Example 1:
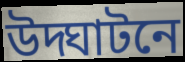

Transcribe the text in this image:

উদ্ঘাটনে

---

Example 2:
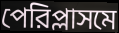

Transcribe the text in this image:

পেরিপ্লাসমে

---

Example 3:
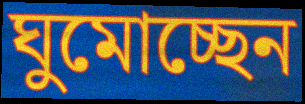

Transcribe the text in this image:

ঘুমোচ্ছেন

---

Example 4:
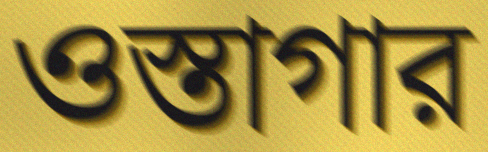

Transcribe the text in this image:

ওস্তাগার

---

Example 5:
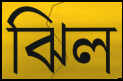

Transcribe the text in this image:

ঝিল